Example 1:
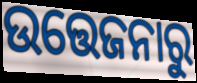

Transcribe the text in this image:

ଉତ୍ତେଜନାରୁ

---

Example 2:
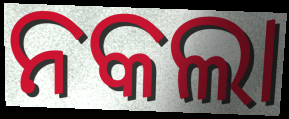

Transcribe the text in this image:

ନକଲା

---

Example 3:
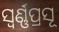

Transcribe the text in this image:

ସ୍ୱର୍ଣ୍ଣପ୍ରସୂ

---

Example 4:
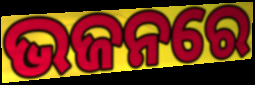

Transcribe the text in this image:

ଭଜନରେ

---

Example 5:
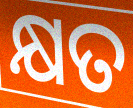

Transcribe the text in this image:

କ୍ଷତ